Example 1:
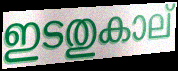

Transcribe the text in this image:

ഇടതുകാല്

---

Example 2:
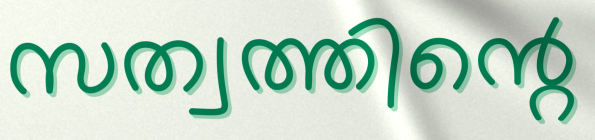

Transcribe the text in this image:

സത്വത്തിന്റെ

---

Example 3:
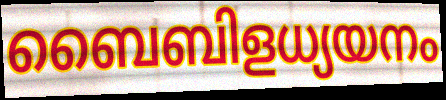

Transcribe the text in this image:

ബൈബിളധ്യയനം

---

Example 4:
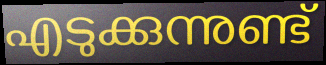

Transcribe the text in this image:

എടുക്കുന്നുണ്ട്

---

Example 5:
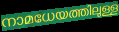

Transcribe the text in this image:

നാമധേയത്തിലുള്ള